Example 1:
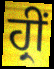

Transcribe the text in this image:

ਹ੍ਰੀਂ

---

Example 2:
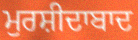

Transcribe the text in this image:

ਮੁਰਸ਼ੀਦਾਬਾਦ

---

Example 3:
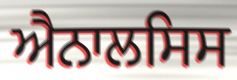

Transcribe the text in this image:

ਐਨਾਲਸਿਸ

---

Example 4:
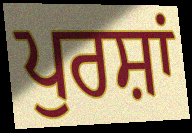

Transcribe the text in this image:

ਪੁਰਸ਼ਾਂ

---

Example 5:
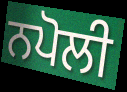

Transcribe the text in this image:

ਨਪੋਲੀ